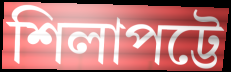
শিলাপট্টে